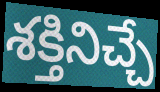
శక్తినిచ్చే